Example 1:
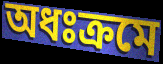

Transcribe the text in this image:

অধঃক্রমে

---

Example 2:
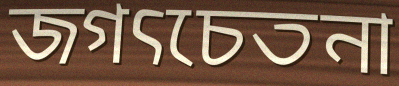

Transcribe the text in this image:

জগৎচেতনা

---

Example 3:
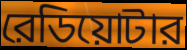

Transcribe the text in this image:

রেডিয়োটার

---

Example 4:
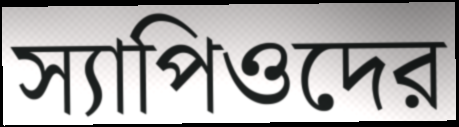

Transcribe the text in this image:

স্যাপিওদের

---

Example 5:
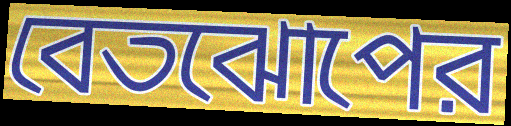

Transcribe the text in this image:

বেতঝোপের